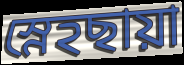
স্নেহছায়া